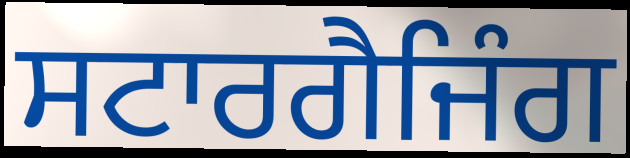
ਸਟਾਰਗੈਜਿੰਗ